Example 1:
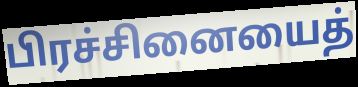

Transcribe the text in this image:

பிரச்சினையைத்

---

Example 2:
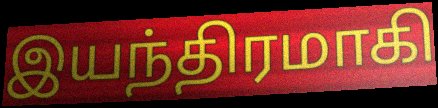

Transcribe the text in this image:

இயந்திரமாகி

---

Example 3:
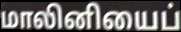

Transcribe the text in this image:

மாலினியைப்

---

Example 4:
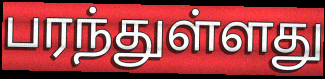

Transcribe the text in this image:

பரந்துள்ளது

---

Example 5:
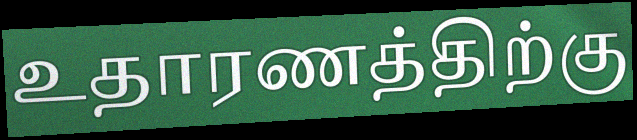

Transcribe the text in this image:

உதாரணத்திற்கு